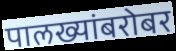
पालख्यांबरोबर